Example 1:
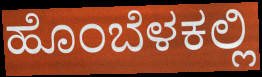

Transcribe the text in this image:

ಹೊಂಬೆಳಕಲ್ಲಿ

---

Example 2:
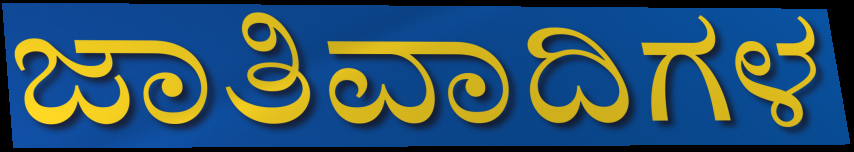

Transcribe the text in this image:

ಜಾತಿವಾದಿಗಳ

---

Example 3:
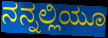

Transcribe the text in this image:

ನನ್ನಲ್ಲಿಯೂ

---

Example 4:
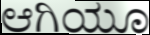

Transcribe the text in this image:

ಆಗಿಯೂ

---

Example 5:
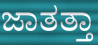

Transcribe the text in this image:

ಜಾತತ್ತಾ